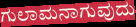
ಗುಲಾಮನಾಗುವುದು